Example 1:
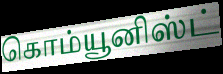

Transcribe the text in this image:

கொம்யூனிஸ்ட்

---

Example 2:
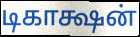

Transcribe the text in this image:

டிகாக்ஷன்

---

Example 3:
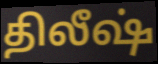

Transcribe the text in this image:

திலீஷ்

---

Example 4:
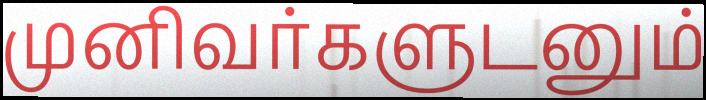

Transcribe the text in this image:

முனிவர்களுடனும்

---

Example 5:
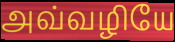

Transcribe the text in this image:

அவ்வழியே